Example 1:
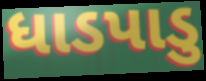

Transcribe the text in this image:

ધાડપાડુ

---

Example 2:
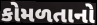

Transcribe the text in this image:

કોમળતાનો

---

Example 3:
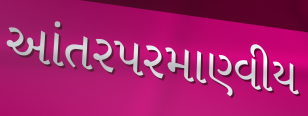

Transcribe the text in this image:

આંતરપરમાણ્વીય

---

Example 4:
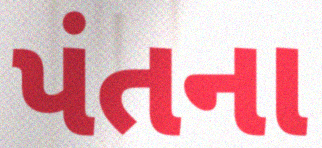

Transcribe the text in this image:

પંતના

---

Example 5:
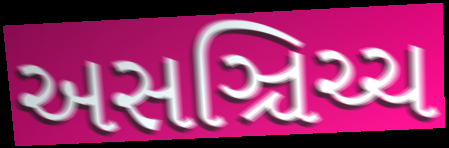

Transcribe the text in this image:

અસઞ્ચિચ્ચ